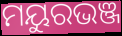
ମୟୁରଭଞ୍ଜ